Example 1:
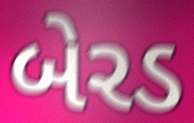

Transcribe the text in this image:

બેરડ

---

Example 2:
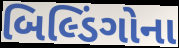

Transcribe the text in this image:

બિલ્ડિંગોના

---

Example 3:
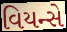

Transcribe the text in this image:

વિયન્સે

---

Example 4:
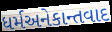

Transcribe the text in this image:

ધર્મઅનેકાન્તવાદ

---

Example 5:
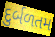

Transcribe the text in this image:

દુર્બળતમ